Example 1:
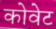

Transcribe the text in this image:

कोवेट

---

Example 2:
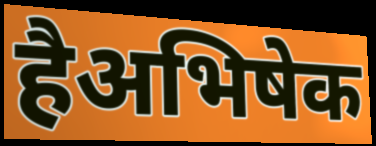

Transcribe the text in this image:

हैअभिषेक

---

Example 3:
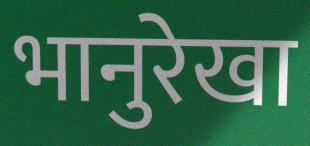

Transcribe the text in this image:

भानुरेखा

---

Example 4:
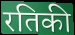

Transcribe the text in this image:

रतिकी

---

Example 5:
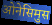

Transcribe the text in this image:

ओनेसिमुस